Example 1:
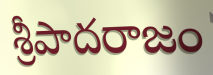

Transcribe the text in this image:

శ్రీపాదరాజం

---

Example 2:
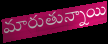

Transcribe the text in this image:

మారుతున్నాయి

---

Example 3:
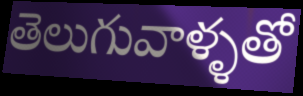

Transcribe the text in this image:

తెలుగువాళ్ళతో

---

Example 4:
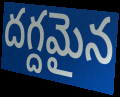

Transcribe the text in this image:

దగ్దమైన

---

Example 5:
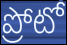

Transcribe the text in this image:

ప్రోటో